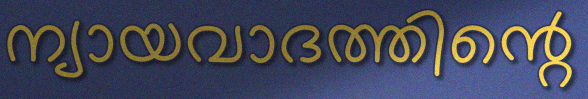
ന്യായവാദത്തിന്റെ